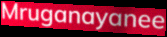
Mruganayanee